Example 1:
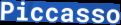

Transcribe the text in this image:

Piccasso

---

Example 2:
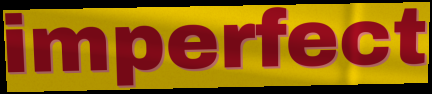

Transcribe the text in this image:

imperfect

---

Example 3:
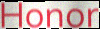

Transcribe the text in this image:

Honor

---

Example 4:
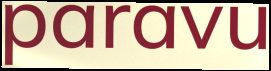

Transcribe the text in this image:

paravu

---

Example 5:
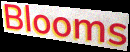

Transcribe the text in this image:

Blooms